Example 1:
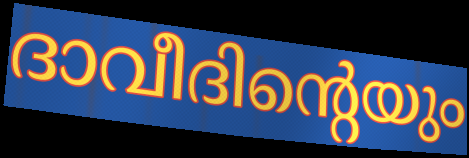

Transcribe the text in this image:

ദാവീദിന്റെയും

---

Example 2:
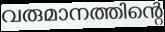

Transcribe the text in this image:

വരുമാനത്തിന്റെ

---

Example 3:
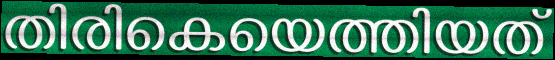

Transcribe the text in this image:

തിരികെയെത്തിയത്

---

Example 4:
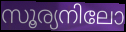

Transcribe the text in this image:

സൂര്യനിലോ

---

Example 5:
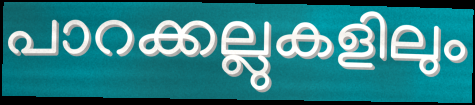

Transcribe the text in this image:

പാറക്കല്ലുകളിലും